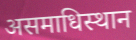
असमाधिस्थान